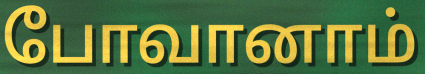
போவானாம்